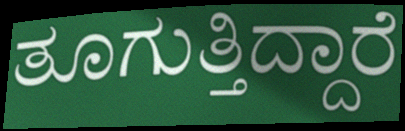
ತೂಗುತ್ತಿದ್ದಾರೆ